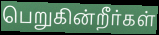
பெறுகின்றீர்கள்